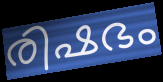
രിഷഭം